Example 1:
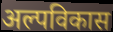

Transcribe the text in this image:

अल्पविकास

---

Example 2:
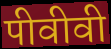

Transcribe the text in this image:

पीवीवी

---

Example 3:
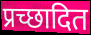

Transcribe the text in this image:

प्रच्छादित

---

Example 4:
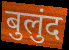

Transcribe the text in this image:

बुलुंद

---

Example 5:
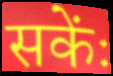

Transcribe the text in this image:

सकेंः